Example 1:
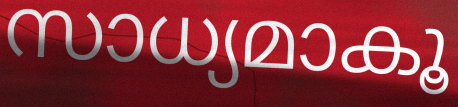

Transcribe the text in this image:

സാധ്യമാകൂ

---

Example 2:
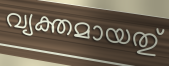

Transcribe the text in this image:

വ്യക്തമായതു്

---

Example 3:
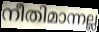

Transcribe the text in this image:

നീതിമാന്നല്ല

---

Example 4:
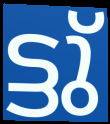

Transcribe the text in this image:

ട്ടു്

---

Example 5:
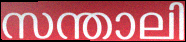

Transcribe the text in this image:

സന്താലി